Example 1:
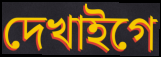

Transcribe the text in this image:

দেখাইগে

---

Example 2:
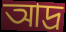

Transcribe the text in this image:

আদ্র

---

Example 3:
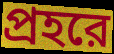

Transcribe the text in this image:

প্রহরে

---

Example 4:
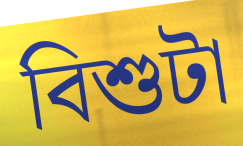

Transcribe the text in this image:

বিশুটা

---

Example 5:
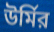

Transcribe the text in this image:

উর্মির